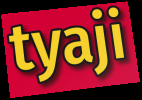
tyaji